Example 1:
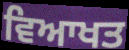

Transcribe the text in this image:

ਵਿਆਖਤ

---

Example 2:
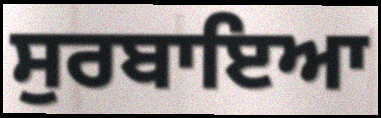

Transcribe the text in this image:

ਸੁਰਬਾਇਆ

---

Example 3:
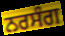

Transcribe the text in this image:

ਨਰਸੰਗ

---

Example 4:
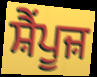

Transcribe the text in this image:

ਸ਼ੈਂਪੂਜ਼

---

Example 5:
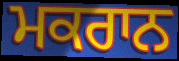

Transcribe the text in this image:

ਮਕਰਾਨ